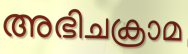
അഭിചക്രാമ